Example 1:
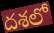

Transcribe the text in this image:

దశలో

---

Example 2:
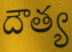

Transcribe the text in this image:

దౌత్య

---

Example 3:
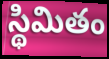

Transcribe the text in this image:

స్థిమితం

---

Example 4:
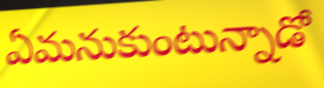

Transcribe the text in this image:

ఏమనుకుంటున్నాడో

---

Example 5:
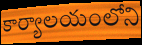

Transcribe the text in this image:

కార్యాలయంలోని